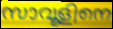
സാവൂളിനെ